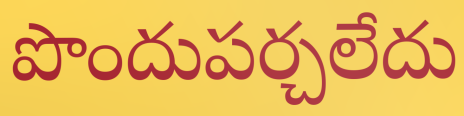
పొందుపర్చలేదు